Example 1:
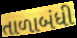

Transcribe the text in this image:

તાળાબંધી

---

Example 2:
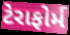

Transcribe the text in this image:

ટેરાફોર્મ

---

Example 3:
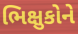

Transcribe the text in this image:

ભિક્ષુકોને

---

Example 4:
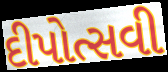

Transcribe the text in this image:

દીપોત્સવી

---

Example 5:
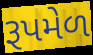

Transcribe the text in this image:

રૂપમેળ